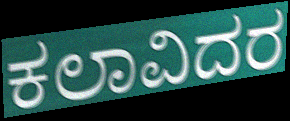
ಕಲಾವಿದರ